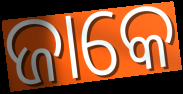
ଜାକେ